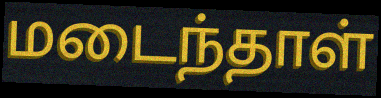
மடைந்தாள்